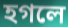
হগলে